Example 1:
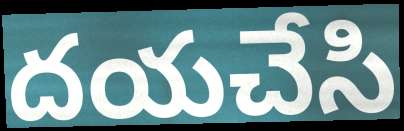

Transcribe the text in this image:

దయచేసి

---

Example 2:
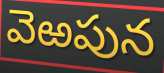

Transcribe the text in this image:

వెఱపున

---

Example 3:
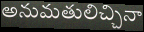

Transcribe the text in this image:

అనుమతులిచ్చినా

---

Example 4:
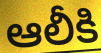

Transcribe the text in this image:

ఆలీకి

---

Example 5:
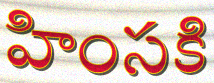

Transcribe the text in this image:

హింసకి